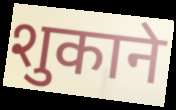
शुकाने